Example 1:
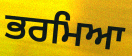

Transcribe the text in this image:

ਭਰਮਿਆ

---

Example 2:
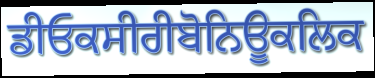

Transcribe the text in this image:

ਡੀਓਕਸੀਰੀਬੋਨਿਊਕਲਿਕ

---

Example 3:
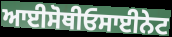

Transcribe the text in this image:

ਆਈਸੋਥੀਓਸਾਈਨੇਟ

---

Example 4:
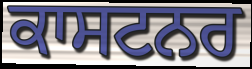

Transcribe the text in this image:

ਕਾਸਟਨਰ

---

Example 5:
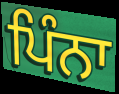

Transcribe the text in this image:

ਪਿੰਨਾ